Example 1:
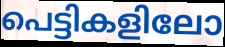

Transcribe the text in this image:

പെട്ടികളിലോ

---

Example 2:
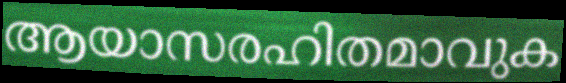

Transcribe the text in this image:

ആയാസരഹിതമാവുക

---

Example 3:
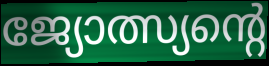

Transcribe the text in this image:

ജ്യോത്സ്യന്റെ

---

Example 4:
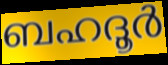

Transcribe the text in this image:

ബഹദൂർ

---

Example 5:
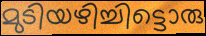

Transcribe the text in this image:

മുടിയഴിച്ചിട്ടൊരു